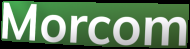
Morcom